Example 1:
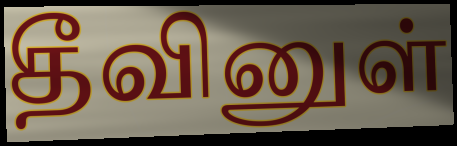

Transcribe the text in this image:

தீவினுள்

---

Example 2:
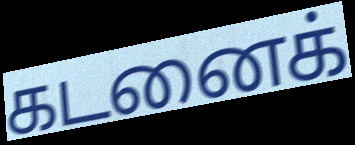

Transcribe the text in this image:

கடனைக்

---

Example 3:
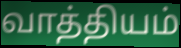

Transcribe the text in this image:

வாத்தியம்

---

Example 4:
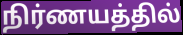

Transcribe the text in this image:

நிர்ணயத்தில்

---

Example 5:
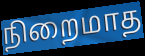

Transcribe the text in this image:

நிறைமாத